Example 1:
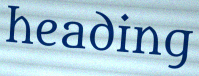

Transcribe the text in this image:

heading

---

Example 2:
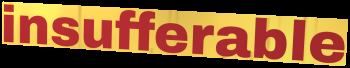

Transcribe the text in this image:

insufferable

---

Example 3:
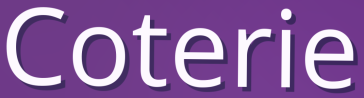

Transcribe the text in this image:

Coterie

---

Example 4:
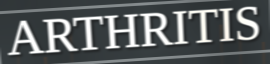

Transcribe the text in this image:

ARTHRITIS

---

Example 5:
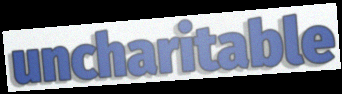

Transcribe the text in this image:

uncharitable